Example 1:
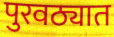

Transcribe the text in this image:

पुरवठ्यात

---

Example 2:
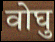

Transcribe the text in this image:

वोघु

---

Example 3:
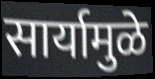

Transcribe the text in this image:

सार्यामुळे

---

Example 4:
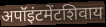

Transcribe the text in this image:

अपॉइंटमेंटशिवाय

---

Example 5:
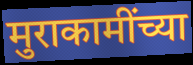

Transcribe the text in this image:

मुराकामींच्या